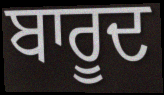
ਬਾਰੂਦ